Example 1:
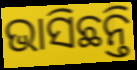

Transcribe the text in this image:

ଭାସିଛନ୍ତି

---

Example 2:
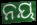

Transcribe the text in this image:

ନୟ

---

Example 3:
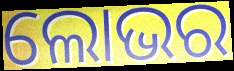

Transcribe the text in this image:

ଲୋଭର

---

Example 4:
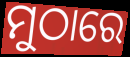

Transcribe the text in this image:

ମୁଠାରେ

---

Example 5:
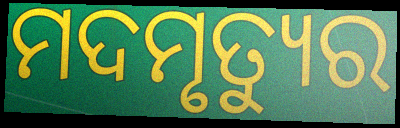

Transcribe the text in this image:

ମଦମୃତ୍ୟୁର